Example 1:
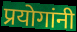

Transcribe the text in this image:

प्रयोगांनी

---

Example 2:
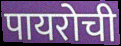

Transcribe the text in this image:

पायरोची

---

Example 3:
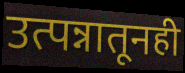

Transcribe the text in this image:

उत्पन्नातूनही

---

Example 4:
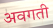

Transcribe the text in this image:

अवगती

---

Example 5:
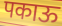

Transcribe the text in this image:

पकाऊ